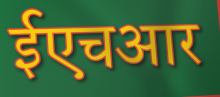
ईएचआर